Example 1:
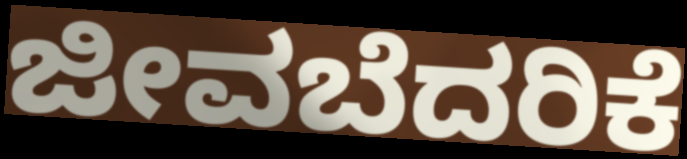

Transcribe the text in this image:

ಜೀವಬೆದರಿಕೆ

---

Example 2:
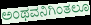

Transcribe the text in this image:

ಅಂಥವನಿಗಿಂತಲೂ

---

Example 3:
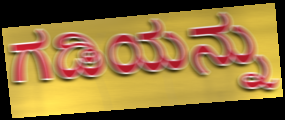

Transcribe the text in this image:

ಗಡಿಯನ್ನು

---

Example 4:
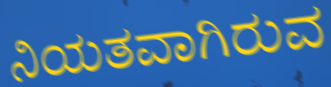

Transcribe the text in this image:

ನಿಯತವಾಗಿರುವ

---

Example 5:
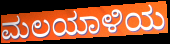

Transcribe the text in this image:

ಮಲಯಾಳಿಯ